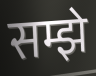
सम्झे